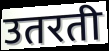
उतरती